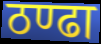
ठण्ढा